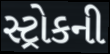
સ્ટ્રોકની